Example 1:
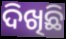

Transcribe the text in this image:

ଦିଖିଛି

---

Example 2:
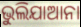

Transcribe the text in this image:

ଭୁଲିଯାଆନା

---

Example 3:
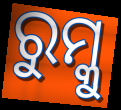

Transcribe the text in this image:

ରୁମ୍କୁ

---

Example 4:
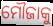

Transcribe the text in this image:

ମୌଜାକୁ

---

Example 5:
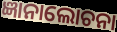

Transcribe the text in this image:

ଜ୍ଞାନାଲୋଚନା